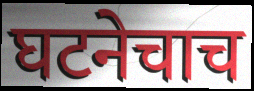
घटनेचाच